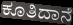
ಕೂತಿದಾನೆ